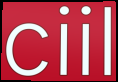
ciil